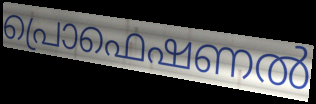
പ്രൊഫെഷണൽ